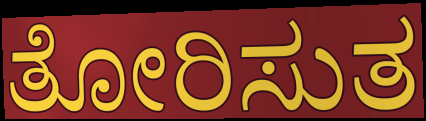
ತೋರಿಸುತ